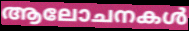
ആലോചനകൾ